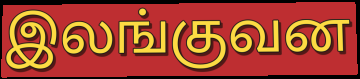
இலங்குவன